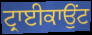
ਟ੍ਰਾਈਕਾਉਂਟ